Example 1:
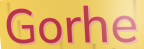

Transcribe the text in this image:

Gorhe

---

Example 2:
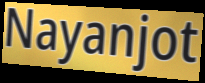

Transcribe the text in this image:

Nayanjot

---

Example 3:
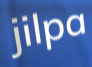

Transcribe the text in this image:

jilpa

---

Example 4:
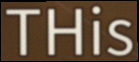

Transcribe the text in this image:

THis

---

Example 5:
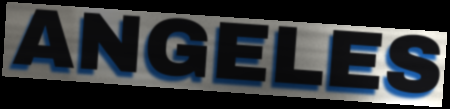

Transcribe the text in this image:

ANGELES